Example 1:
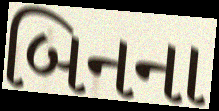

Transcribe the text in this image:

બિનના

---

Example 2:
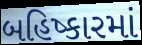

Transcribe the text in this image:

બહિષ્કારમાં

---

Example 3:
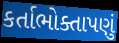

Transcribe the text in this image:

કર્તાભોક્તાપણું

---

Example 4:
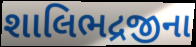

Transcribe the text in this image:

શાલિભદ્રજીના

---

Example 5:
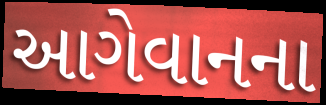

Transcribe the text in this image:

આગેવાનના